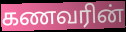
கணவரின்